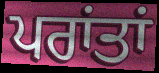
ਪਰਾਂਤਾਂ